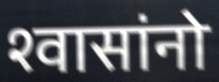
श्वासांनो